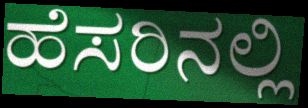
ಹೆಸರಿನಲ್ಲಿ